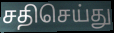
சதிசெய்து